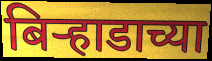
बिऱ्हाडाच्या